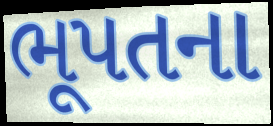
ભૂપતના